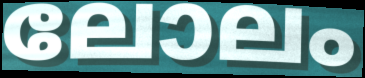
ലോലം